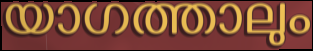
യാഗത്താലും